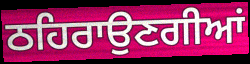
ਠਹਿਰਾਉਣਗੀਆਂ